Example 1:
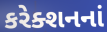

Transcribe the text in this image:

કરેક્શનનાં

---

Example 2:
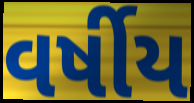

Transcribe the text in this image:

વર્ષીય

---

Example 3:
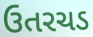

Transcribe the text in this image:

ઉતરચડ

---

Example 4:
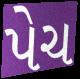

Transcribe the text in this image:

પેચ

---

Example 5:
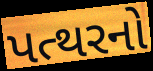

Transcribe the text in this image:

પત્થરનો